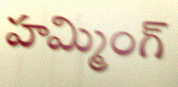
హమ్మింగ్